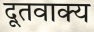
दूतवाक्य